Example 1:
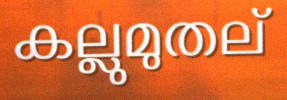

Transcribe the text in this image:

കല്ലുമുതല്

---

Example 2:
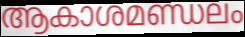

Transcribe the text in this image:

ആകാശമണ്ഡലം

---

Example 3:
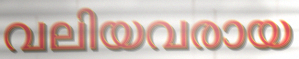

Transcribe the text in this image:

വലിയവരായ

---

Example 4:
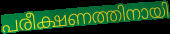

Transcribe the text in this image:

പരീക്ഷണത്തിനായി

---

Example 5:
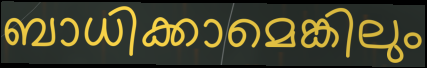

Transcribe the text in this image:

ബാധിക്കാമെങ്കിലും